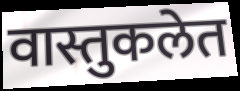
वास्तुकलेत